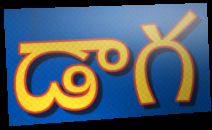
డాగ